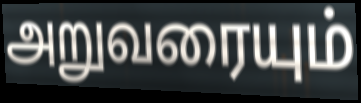
அறுவரையும்